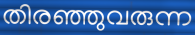
തിരഞ്ഞുവരുന്ന